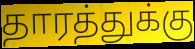
தாரத்துக்கு